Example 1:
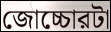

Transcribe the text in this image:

জোচ্চোরটা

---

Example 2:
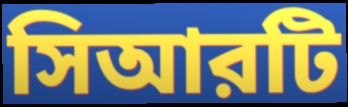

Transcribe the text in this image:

সিআরটি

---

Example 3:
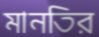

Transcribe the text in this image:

মানতির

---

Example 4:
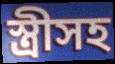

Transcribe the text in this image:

স্ত্রীসহ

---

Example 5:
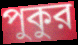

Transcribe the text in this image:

পুকুর